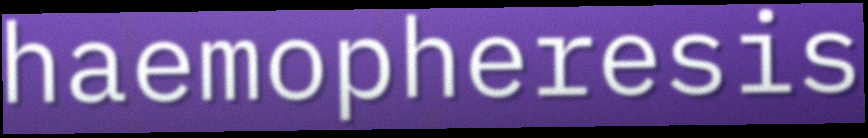
haemopheresis